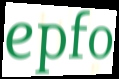
epfo